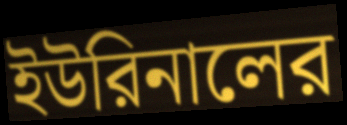
ইউরিনালের